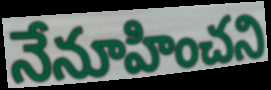
నేనూహించని